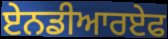
ਏਨਡੀਆਰਏਫ